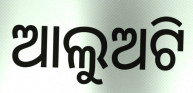
ଆଲୁଅଟି